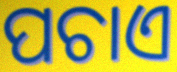
ପଚାଏ